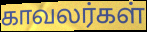
காவலர்கள்